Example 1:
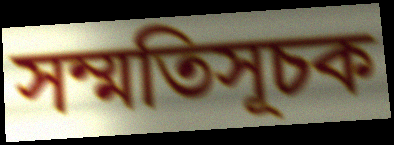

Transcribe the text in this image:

সম্মতিসূচক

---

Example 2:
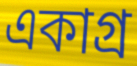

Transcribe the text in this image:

একাগ্র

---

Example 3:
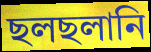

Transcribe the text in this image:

ছলছলানি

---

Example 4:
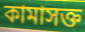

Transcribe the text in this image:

কামাসক্ত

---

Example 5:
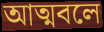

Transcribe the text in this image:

আত্মবলে